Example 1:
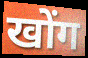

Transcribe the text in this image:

खोंग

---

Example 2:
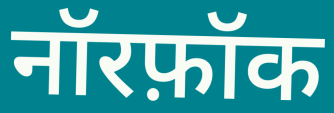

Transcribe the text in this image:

नॉरफ़ॉक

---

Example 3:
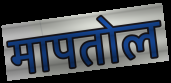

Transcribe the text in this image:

मापतोल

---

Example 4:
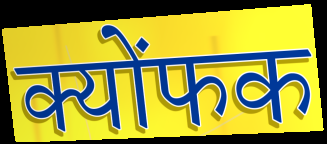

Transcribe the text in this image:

क्योंफक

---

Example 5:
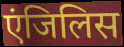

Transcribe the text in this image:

एंजिलिस